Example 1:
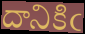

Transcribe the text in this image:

దానికిఁ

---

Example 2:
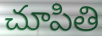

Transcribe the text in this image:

చూపితి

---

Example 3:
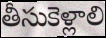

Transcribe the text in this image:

తీసుకెళ్లాలి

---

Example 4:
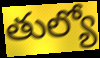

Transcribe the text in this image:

తుల్యో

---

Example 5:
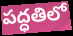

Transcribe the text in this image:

పద్ధతిలో